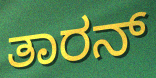
ತಾರನ್